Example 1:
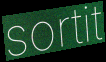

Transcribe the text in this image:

sortit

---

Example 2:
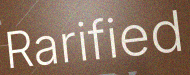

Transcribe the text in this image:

Rarified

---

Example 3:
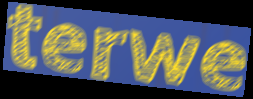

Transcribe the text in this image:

terwe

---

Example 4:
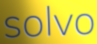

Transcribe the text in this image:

solvo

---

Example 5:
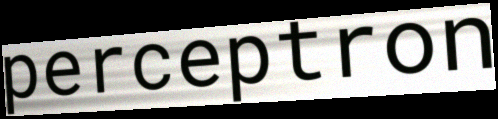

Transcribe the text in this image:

perceptron